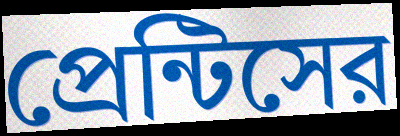
প্রেন্টিসের